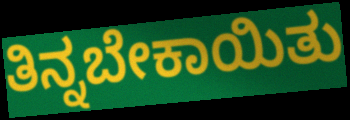
ತಿನ್ನಬೇಕಾಯಿತು